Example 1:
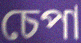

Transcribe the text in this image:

চেপা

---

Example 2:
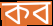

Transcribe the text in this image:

কব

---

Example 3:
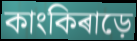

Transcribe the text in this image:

কাংকিৰাড়ে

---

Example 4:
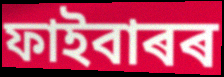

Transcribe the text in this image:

ফাইবাৰৰ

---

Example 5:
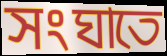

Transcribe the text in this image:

সংঘাতে